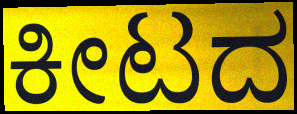
ಕೀಟದ